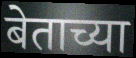
बेताच्या